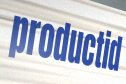
productid